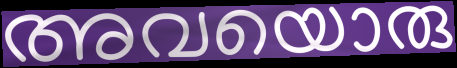
അവയൊരു